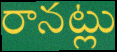
రానట్లు